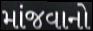
માંજવાનો